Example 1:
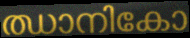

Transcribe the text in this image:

ഝാനികോ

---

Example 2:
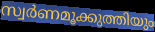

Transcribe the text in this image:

സ്വർണമൂക്കുത്തിയും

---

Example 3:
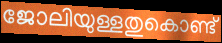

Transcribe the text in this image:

ജോലിയുള്ളതുകൊണ്ട്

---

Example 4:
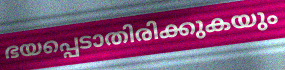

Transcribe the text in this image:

ഭയപ്പെടാതിരിക്കുകയും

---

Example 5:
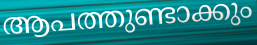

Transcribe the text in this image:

ആപത്തുണ്ടാക്കും